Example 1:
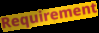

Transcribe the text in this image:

Requirement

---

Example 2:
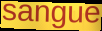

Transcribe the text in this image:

sangue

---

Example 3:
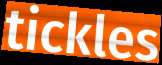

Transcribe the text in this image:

tickles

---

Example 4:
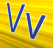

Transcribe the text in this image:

Vv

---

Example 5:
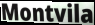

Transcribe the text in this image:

Montvila